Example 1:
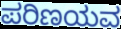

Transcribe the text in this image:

ಪರಿಣಯವ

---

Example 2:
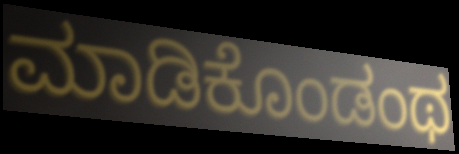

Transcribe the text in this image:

ಮಾಡಿಕೊಂಡಂಥ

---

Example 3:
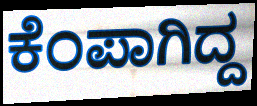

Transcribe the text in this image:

ಕೆಂಪಾಗಿದ್ದ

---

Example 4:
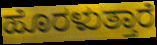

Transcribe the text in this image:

ಹೊರಳುತ್ತಾರೆ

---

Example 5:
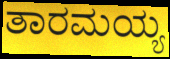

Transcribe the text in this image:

ತಾರಮಯ್ಯ